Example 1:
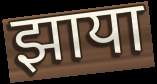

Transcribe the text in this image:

झाया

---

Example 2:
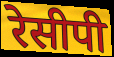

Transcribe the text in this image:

रेसीपी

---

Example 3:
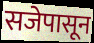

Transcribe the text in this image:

सजेपासून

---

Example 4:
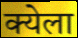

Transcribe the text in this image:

क्येला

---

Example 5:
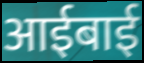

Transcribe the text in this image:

आईबाई